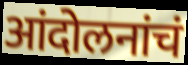
आंदोलनांचं